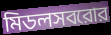
মিডলসবরোর